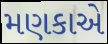
મણકાએ